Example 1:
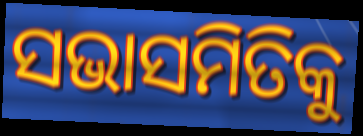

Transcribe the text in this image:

ସଭାସମିତିକୁ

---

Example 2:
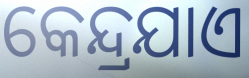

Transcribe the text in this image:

କେନ୍ଦ୍ରଯାଏ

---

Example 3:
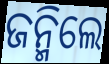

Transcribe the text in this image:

ଜନ୍ମିଲେ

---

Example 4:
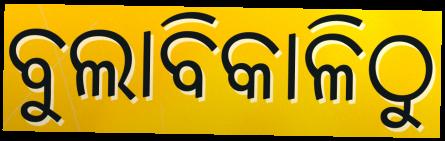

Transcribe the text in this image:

ବୁଲାବିକାଳିଠୁ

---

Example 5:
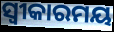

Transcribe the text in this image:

ସ୍ଵୀକାରମୟ